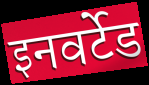
इनवर्टेड